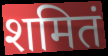
शमितं